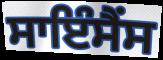
ਸਾਇੰਸੈਂਸ